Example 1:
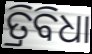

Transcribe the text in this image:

ତ୍ରିବିଧା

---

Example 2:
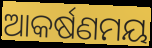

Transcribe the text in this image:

ଆକର୍ଷଣମୟ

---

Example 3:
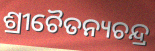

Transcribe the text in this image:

ଶ୍ରୀଚୈତନ୍ୟଚନ୍ଦ୍ର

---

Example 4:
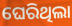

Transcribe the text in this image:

ଘେରିଥିଲା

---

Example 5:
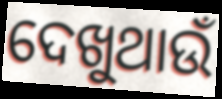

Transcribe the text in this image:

ଦେଖୁଥାଉଁ